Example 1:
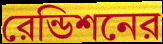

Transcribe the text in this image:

রেন্ডিশনের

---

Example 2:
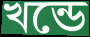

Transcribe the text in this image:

খন্ডে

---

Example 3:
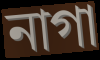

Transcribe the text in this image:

নাগা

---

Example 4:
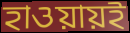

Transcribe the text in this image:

হাওয়ায়ই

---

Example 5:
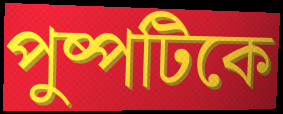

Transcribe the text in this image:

পুষ্পটিকে